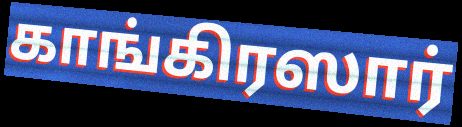
காங்கிரஸார்